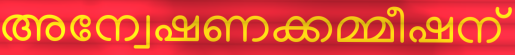
അന്വേഷണക്കമ്മീഷന്